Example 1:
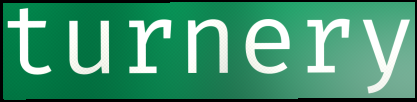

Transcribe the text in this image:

turnery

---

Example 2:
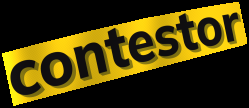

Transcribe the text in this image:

contestor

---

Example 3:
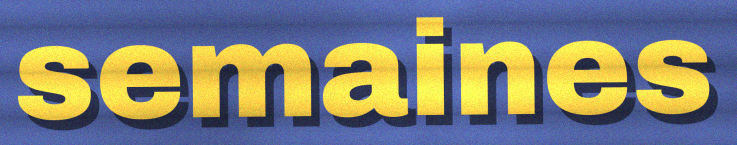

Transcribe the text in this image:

semaines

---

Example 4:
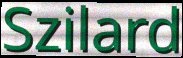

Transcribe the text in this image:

Szilard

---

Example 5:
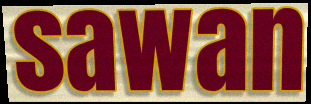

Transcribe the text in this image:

sawan